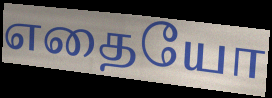
எதையோ